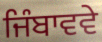
ਜਿੰਬਾਵਵੇ